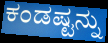
ಕಂಡಷ್ಟನ್ನು